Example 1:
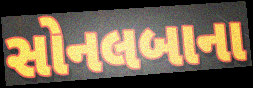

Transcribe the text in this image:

સોનલબાના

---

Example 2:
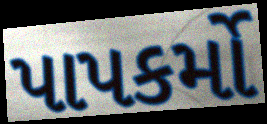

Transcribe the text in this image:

પાપકર્મો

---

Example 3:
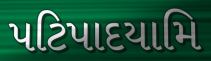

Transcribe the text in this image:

પટિપાદયામિ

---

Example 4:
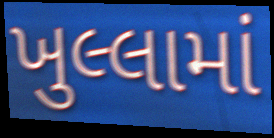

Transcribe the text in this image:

ખુલ્લામાં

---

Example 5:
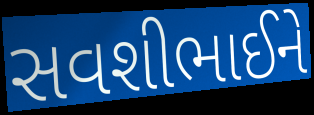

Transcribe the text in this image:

સવશીભાઈને